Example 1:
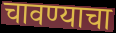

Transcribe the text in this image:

चावण्याचा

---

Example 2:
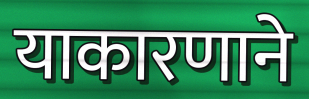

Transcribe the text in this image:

याकारणाने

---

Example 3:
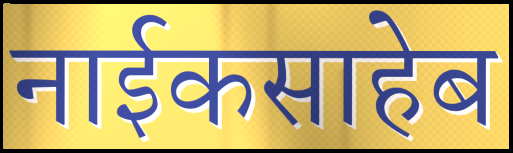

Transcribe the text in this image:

नाईकसाहेब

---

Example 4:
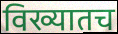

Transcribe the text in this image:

विख्यातच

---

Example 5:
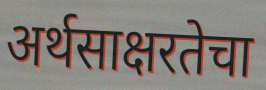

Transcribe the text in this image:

अर्थसाक्षरतेचा